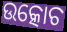
ଉତ୍କୋଚ